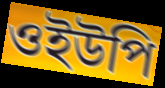
ওইউপি